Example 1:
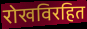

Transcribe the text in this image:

रोखविरहित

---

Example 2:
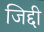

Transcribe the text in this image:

जिद्दी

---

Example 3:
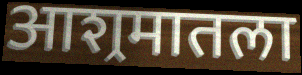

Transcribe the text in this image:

आश्रमातला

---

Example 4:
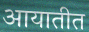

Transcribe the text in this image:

आयातीत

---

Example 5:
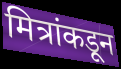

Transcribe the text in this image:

मित्रांकडून